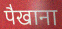
पैखाना